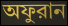
অফুরান